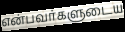
என்பவர்களுடைய